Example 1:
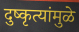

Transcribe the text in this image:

दुष्कृत्यांमुळे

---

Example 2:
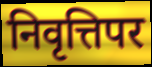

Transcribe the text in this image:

निवृत्तिपर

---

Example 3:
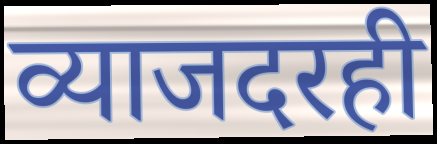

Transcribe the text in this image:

व्याजदरही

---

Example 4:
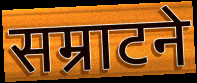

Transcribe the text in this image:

सम्राटने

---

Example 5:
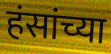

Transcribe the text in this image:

हंसांच्या